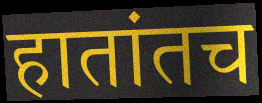
हातांतच